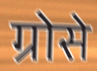
ग्रोसे